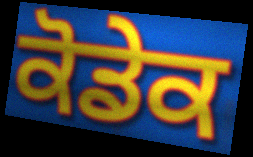
ਕੋਡੇਕ